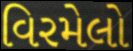
વિરમેલો